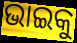
ଭାଇକୁ